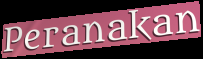
Peranakan